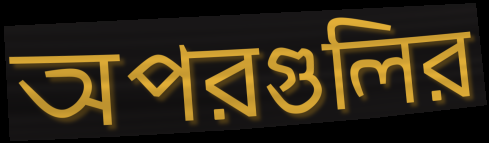
অপরগুলির